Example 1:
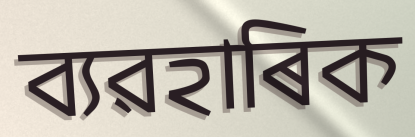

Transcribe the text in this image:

ব্যৱহাৰিক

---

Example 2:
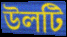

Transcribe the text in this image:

উলটি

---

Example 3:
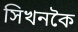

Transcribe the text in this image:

সিখনকৈ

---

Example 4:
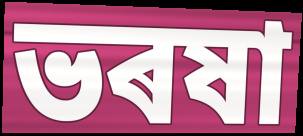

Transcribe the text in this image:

ভৰষা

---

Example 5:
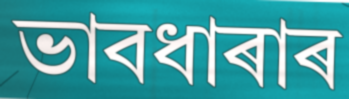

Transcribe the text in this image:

ভাবধাৰাৰ